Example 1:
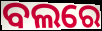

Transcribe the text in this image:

ବଲରେ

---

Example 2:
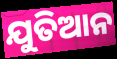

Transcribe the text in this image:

ଯୁତିଆନ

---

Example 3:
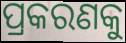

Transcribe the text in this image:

ପ୍ରକରଣକୁ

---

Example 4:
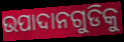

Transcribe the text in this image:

ଉପାଦାନଗୁଡିକୁ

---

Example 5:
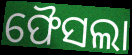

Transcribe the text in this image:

ଫୈସଲା